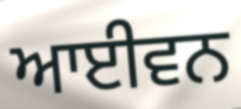
ਆਈਵਨ